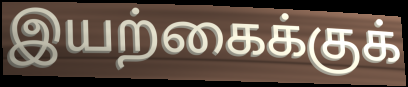
இயற்கைக்குக்